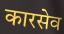
कारसेव